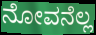
ನೋವನೆಲ್ಲ